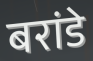
बरांडे